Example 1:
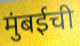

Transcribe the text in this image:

मुंबईची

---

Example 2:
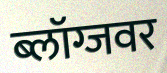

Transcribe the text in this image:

ब्लॉग्जवर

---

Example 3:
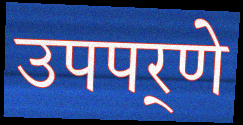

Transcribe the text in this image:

उपपर्णे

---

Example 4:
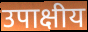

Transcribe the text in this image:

उपाक्षीय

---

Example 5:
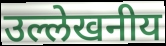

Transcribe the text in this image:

उल्लेखनीय